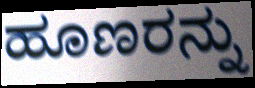
ಹೂಣರನ್ನು